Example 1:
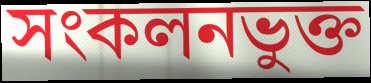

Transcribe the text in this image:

সংকলনভুক্ত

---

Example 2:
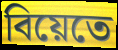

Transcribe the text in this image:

বিয়েতে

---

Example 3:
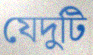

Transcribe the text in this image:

যেদুটি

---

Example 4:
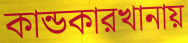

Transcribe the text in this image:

কান্ডকারখানায়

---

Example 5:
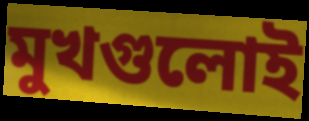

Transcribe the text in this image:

মুখগুলোই